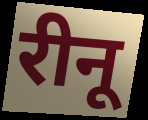
रीनू